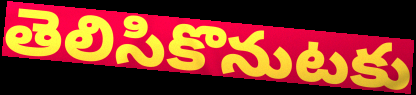
తెలిసికొనుటకు